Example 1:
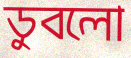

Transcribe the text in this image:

ডুবলো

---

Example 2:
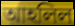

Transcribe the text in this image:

আহলিল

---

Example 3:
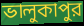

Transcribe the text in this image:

ভালুকাপুর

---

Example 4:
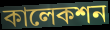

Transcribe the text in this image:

কালেকশন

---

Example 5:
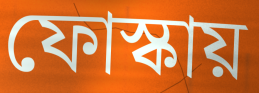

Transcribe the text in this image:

ফোস্কায়